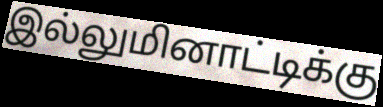
இல்லுமினாட்டிக்கு